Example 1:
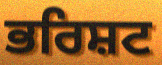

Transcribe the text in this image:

ਭਰਿਸ਼ਟ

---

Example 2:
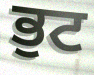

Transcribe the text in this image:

ਭੁਟ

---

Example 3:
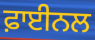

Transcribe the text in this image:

ਫ਼ਾਈਨਲ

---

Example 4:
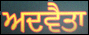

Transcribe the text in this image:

ਅਦਵੈਤਾ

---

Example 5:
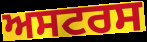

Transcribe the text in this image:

ਅਸਟਰਸ